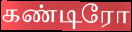
கண்டிரோ